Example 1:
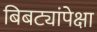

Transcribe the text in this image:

बिबट्यांपेक्षा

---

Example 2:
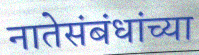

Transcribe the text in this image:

नातेसंबंधांच्या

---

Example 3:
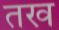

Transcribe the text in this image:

तख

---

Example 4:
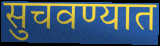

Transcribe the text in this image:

सुचवण्यात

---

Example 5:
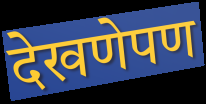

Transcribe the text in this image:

देखणेपण